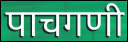
पाचगणी